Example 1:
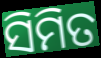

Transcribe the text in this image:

ସିମିତ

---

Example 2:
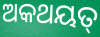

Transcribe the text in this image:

ଅକଥୟତ୍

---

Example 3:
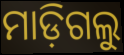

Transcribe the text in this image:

ମାଡ଼ିଗଲୁ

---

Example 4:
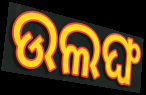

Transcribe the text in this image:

ଉଲଙ୍ଘ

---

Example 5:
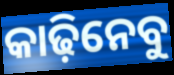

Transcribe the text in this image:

କାଢ଼ିନେବୁ